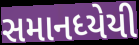
સમાનધ્યેયી